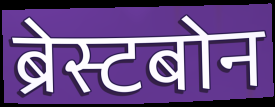
ब्रेस्टबोन